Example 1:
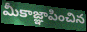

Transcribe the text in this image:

మీకాజ్ఞాపించిన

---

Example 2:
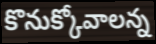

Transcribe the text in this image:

కొనుక్కోవాలన్న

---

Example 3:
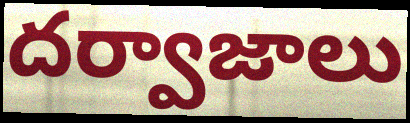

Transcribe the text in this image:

దర్వాజాలు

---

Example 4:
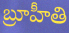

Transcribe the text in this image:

బ్రూహీతి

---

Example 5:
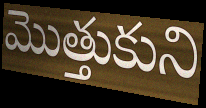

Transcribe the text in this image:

మొత్తుకుని